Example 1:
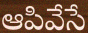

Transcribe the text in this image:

ఆపివేసే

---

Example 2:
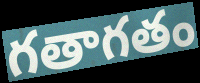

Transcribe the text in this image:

గతాగతం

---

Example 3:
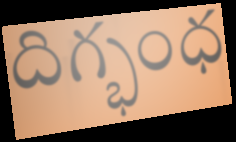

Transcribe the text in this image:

దిగ్భంధ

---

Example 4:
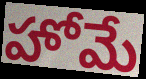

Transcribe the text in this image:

హోమే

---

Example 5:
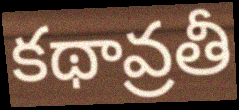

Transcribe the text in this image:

కథావ్రతీ